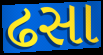
ઢસા